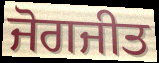
ਜੋਗਜੀਤ